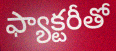
ఫ్యాక్టరీతో